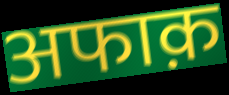
अफाक़